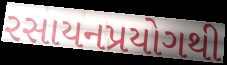
રસાયનપ્રયોગથી